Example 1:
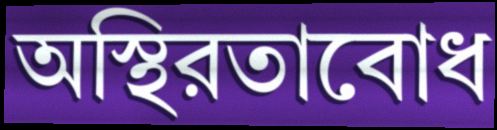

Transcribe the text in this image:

অস্থিরতাবোধ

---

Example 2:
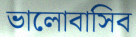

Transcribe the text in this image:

ভালোবাসিব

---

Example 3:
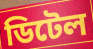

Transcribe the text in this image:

ডিটেল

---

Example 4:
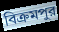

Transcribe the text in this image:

বিক্রমপুর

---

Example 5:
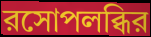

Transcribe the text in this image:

রসোপলব্ধির